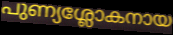
പുണ്യശ്ലോകനായ